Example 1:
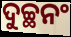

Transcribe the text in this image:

ଦୁଚ୍ଛନଂ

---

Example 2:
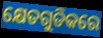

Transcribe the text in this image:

କ୍ଷେତଗୁଡିକରେ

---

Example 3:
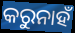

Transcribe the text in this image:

କରୁନାହଁ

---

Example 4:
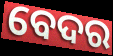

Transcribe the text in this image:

ବେଦର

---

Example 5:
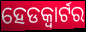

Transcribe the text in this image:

ହେଡକ୍ୱାର୍ଟର